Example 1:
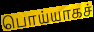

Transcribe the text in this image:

பொய்யாகச்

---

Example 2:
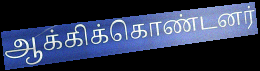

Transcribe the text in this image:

ஆக்கிக்கொண்டனர்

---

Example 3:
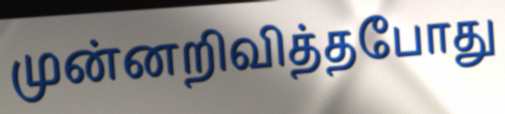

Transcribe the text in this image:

முன்னறிவித்தபோது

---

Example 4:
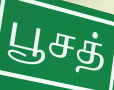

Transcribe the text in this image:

பூசத்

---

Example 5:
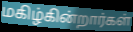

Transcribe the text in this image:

மகிழ்கின்றார்கள்